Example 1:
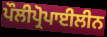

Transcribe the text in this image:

ਪੌਲੀਪ੍ਰੋਪਾਈਲੀਨ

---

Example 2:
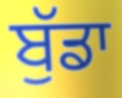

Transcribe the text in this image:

ਬੁੱਡਾ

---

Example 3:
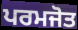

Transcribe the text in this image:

ਪਰਮਜੋਤ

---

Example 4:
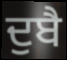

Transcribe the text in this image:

ਦੁਬੈ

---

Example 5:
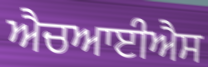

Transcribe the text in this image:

ਐਚਆਈਐਸ